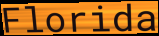
Florida